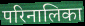
परिनालिका